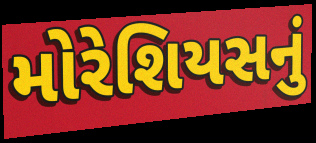
મોરેશિયસનું